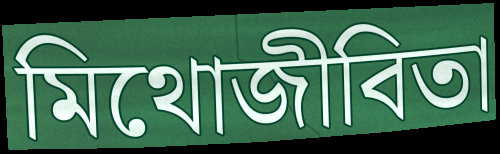
মিথোজীবিতা